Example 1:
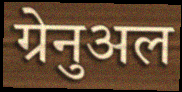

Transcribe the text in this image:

ग्रेनुअल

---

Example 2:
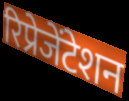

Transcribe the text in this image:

रिप्रेजेंटेशन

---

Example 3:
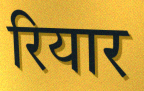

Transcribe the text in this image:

रियार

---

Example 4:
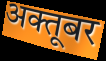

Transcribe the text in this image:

अक्तूबर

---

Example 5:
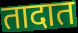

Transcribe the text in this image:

तादात